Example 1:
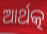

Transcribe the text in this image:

ଆର୍ଥତ୍କ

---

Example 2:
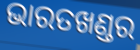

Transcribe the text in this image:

ଭାରତଖଣ୍ଡର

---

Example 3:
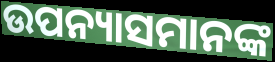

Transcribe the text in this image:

ଉପନ୍ୟାସମାନଙ୍କ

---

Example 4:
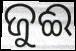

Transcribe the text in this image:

ଜୁଈ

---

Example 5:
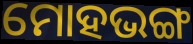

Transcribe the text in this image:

ମୋହଭଙ୍ଗ